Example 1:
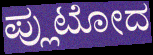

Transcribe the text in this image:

ಪ್ಲುಟೋದ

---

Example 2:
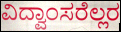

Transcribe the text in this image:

ವಿದ್ವಾಂಸರೆಲ್ಲರ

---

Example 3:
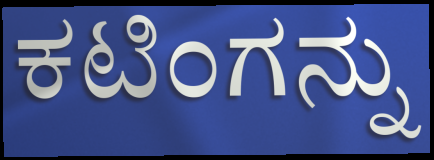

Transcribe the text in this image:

ಕಟಿಂಗನ್ನು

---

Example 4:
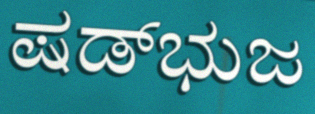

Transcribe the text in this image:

ಷಡ್‌ಭುಜ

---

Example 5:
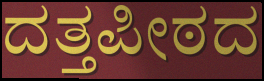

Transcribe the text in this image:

ದತ್ತಪೀಠದ